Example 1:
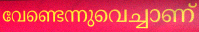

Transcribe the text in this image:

വേണ്ടെന്നുവെച്ചാണ്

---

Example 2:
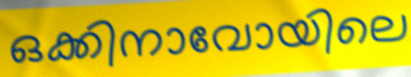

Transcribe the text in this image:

ഒക്കിനാവോയിലെ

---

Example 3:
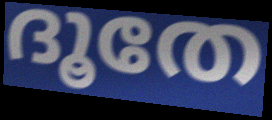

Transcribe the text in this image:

ദൂതേ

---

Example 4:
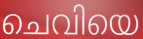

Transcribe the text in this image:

ചെവിയെ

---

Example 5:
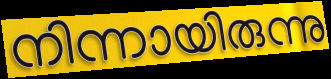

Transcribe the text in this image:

നിന്നായിരുന്നു